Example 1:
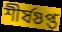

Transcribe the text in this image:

শীর্ষগুপ্ত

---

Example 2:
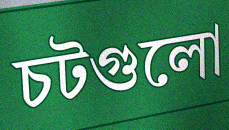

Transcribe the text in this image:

চটগুলো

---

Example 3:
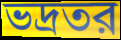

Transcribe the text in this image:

ভদ্রতর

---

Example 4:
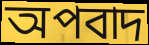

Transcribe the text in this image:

অপবাদ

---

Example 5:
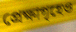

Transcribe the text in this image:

প্রেক্ষাগৃহেও